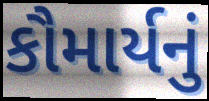
કૌમાર્યનું